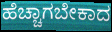
ಹೆಚ್ಚಾಗಬೇಕಾದ